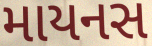
માયનસ